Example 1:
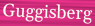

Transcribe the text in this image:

Guggisberg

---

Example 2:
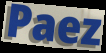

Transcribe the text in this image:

Paez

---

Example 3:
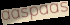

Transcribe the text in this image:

aaspaas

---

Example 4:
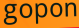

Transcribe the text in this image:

gopon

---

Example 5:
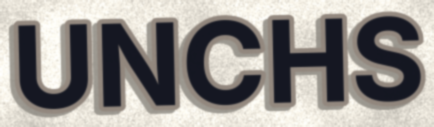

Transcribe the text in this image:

UNCHS